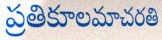
ప్రతికూలమాచరతి